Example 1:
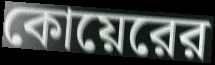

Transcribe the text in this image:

কোয়েরের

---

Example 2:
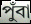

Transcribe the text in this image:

পুঁবা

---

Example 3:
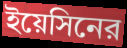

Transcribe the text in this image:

ইয়েসিনের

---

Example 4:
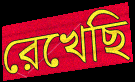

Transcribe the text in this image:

রেখেছি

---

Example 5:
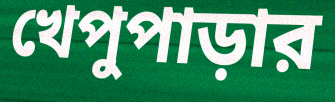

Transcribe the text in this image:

খেপুপাড়ার